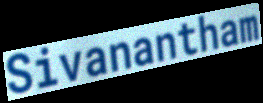
Sivanantham